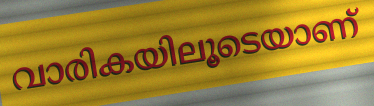
വാരികയിലൂടെയാണ്